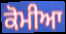
ਕੋਮੀਆ